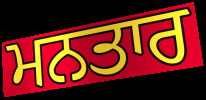
ਮਨਤਾਰ